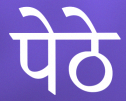
पेठे